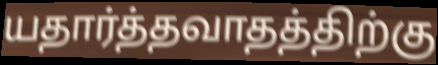
யதார்த்தவாதத்திற்கு